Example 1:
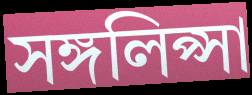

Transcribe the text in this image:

সঙ্গলিপ্সা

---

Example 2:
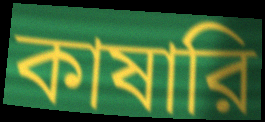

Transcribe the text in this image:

কাষারি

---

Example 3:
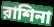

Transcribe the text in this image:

রাশিনা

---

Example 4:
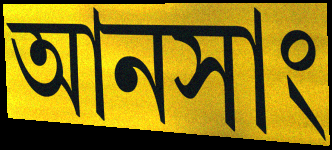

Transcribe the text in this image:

আনসাং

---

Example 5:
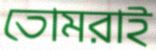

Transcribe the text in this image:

তোমরাই